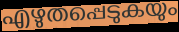
എഴുതപ്പെടുകയും